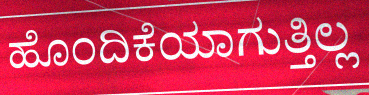
ಹೊಂದಿಕೆಯಾಗುತ್ತಿಲ್ಲ